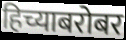
हिच्याबरोबर